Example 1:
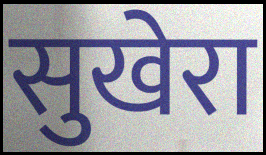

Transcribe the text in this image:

सुखेरा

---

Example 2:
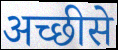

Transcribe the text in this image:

अच्छीसे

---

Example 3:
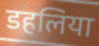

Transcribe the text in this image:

डहलिया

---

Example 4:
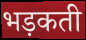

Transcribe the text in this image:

भड़कती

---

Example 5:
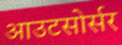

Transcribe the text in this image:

आउटसोर्सर